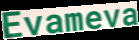
Evameva